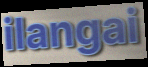
ilangai